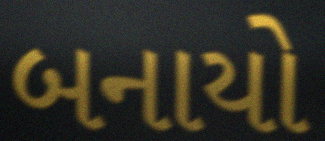
બનાયો